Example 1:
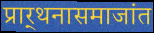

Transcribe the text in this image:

प्रार्थनासमाजांत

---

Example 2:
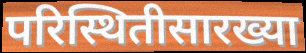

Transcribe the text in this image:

परिस्थितीसारख्या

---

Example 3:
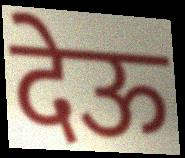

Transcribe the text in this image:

देऊ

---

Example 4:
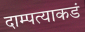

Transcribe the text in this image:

दाम्पत्याकडं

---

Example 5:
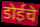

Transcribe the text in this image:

डोईचे